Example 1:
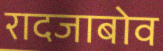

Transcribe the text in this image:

रादजाबोव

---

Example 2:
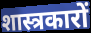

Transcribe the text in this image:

शास्त्रकारों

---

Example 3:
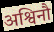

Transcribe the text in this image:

अश्विनौ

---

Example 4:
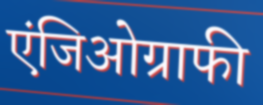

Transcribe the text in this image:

एंजिओग्राफी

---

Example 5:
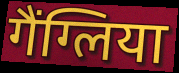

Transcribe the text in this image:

गैंग्लिया